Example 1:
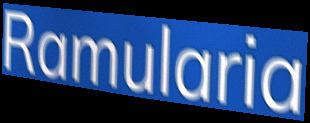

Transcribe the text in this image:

Ramularia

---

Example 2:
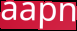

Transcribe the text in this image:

aapn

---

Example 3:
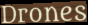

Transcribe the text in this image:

Drones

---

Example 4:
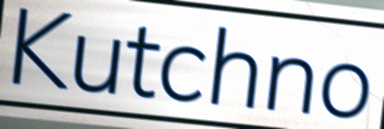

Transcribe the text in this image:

Kutchno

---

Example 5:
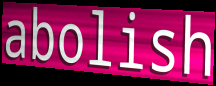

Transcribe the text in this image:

abolish